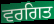
ਵਰਗਿਤ